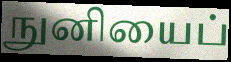
நுனியைப்